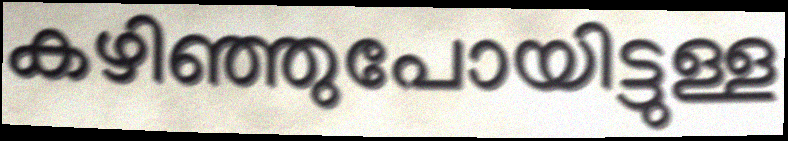
കഴിഞ്ഞുപോയിട്ടുള്ള